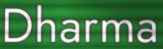
Dharma